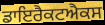
ਡਾਇਰੈਕਟਐਕਸ